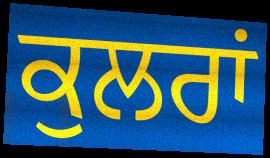
ਕੁਲਰਾਂ